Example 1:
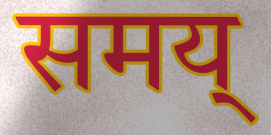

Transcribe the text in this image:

समय्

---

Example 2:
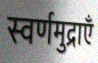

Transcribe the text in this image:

स्वर्णमुद्राएँ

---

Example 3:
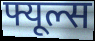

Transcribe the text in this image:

फ्यूल्स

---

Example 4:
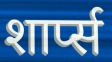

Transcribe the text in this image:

शार्प्स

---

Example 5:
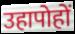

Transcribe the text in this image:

उहापोहों